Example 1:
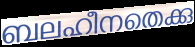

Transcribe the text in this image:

ബലഹീനതെക്കു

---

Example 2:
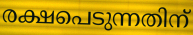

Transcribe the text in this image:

രക്ഷപെടുന്നതിന്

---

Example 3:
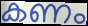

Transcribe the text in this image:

കണം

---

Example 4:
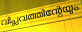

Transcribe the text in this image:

വിപ്ലവത്തിന്റേയും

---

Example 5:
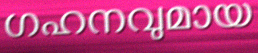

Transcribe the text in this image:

ഗഹനവുമായ